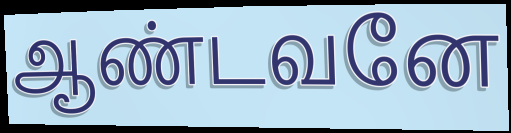
ஆண்டவனே